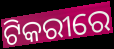
ଟିକରୀରେ